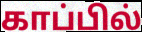
காப்பில்